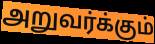
அறுவர்க்கும்